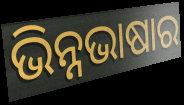
ଭିନ୍ନଭାଷାର